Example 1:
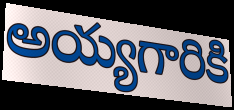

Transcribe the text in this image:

అయ్యగారికి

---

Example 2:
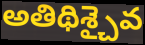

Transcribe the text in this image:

అతిథిశ్చైవ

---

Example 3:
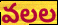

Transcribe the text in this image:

వలల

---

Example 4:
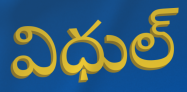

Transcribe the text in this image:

విధుల్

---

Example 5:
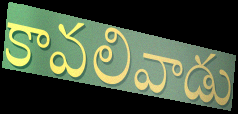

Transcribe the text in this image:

కావలివాడు